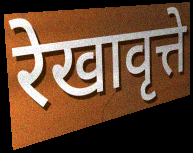
रेखावृत्ते